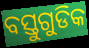
ବସ୍ତୁଗୁଡିକ